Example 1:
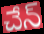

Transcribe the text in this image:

చేన్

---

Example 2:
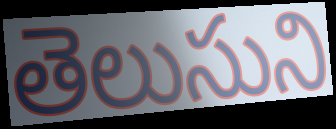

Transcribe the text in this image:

తెలుసుని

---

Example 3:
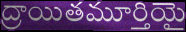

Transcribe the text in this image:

ద్రాయితమూర్తియై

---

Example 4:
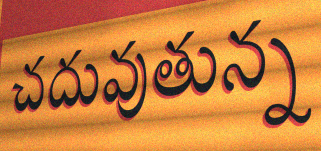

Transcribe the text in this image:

చదువుతున్న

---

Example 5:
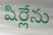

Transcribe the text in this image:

షిర్లేను